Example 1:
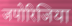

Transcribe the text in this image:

जपोरिजिया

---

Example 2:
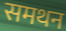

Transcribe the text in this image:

समथन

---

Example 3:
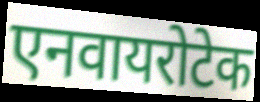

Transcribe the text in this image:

एनवायरोटेक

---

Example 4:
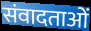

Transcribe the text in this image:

संवादताओं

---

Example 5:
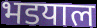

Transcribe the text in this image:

भडयाल